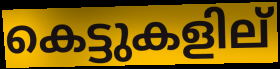
കെട്ടുകളില്